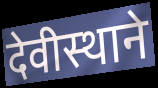
देवीस्थाने